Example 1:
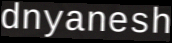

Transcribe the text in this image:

dnyanesh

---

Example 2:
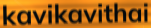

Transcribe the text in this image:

kavikavithai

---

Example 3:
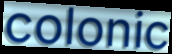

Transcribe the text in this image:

colonic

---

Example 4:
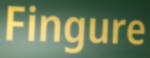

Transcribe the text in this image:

Fingure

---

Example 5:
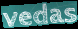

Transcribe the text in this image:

vedas